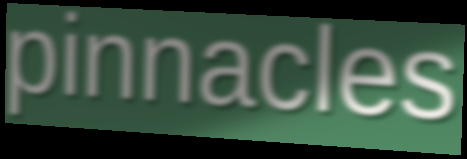
pinnacles